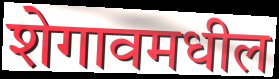
शेगावमधील